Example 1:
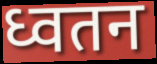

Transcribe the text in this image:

ध्वतन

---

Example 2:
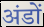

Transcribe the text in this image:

अंडों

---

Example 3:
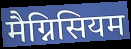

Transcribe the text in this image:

मैग्निसियम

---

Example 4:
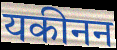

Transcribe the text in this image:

यकीनन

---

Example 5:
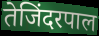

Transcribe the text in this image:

तेजिंदरपाल